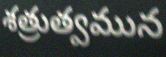
శత్రుత్వమున